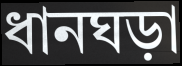
ধানঘড়া